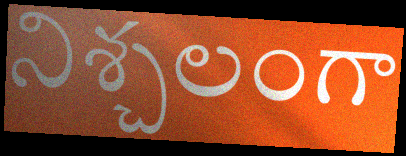
నిశ్చలంగా